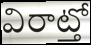
విరాట్తో